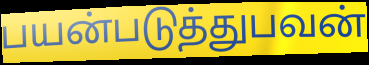
பயன்படுத்துபவன்